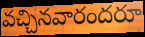
వచ్చినవారందరూ